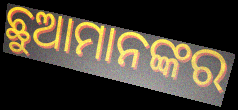
ଛୁଆମାନଙ୍କର